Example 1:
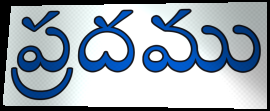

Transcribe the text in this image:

ప్రదము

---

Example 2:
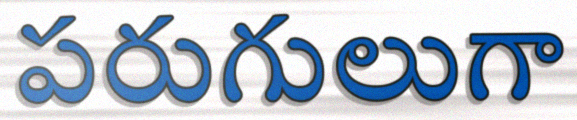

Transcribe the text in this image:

పరుగులుగా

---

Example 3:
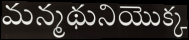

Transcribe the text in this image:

మన్మథునియొక్క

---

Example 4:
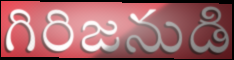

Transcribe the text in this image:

గిరిజనుడి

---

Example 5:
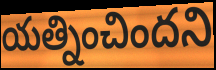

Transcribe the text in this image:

యత్నించిందని